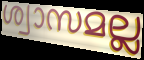
ശ്വാസമല്ല